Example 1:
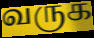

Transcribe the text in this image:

வருக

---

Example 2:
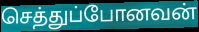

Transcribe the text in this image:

செத்துப்போனவன்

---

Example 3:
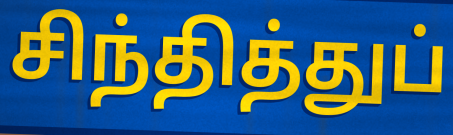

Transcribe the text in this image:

சிந்தித்துப்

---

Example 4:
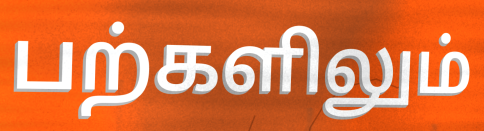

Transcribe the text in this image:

பற்களிலும்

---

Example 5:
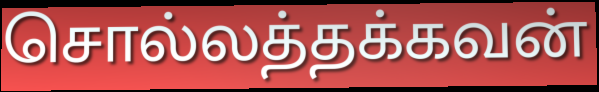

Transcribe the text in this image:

சொல்லத்தக்கவன்